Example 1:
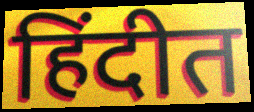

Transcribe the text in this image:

हिंदीत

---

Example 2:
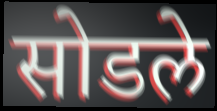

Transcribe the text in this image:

सोडले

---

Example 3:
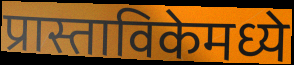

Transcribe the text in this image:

प्रास्ताविकेमध्ये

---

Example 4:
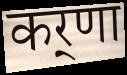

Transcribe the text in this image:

कर्णा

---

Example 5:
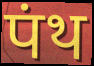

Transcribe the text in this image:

पंथ